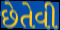
છેતેવી